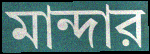
মান্দার